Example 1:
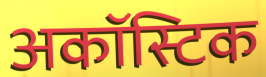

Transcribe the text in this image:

अकॉस्टिक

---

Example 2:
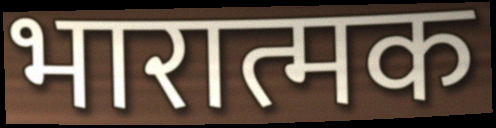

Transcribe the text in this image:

भारात्मक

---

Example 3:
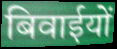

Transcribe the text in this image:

बिवाईयों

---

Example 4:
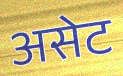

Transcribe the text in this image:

असेट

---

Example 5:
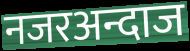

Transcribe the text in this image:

नजरअन्दाज